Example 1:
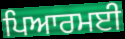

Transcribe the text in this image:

ਪਿਆਰਮਈ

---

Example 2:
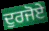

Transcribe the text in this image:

ਦੁਰਜੋਏ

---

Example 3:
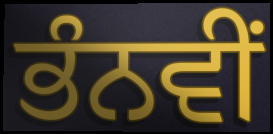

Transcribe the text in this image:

ਭੰਨਵੀਂ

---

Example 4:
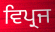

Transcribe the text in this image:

ਵਿਪ੍ਰਜ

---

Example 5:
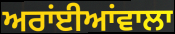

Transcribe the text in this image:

ਅਰਾਂਈਆਂਵਾਲਾ